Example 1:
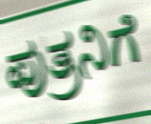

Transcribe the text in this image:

ಪುತ್ರನಿಗೆ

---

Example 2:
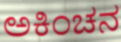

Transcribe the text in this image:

ಅಕಿಂಚನ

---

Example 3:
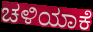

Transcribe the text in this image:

ಚಳಿಯಾಕೆ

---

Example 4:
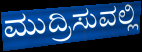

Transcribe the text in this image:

ಮುದ್ರಿಸುವಲ್ಲಿ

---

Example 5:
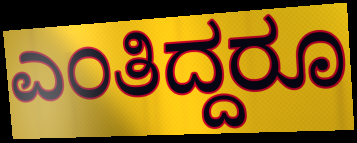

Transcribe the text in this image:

ಎಂತಿದ್ದರೂ